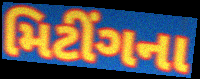
મિટીંગના